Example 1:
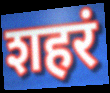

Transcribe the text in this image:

शहरं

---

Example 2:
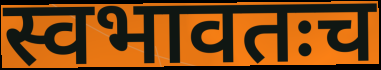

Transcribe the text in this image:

स्वभावतःच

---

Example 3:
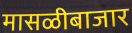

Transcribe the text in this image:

मासळीबाजार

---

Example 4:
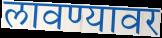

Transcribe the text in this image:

लावण्यावर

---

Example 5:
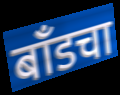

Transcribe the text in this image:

बाँडचा